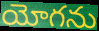
యోగను